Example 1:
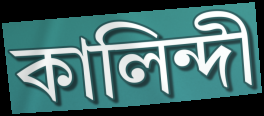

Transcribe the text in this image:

কালিন্দী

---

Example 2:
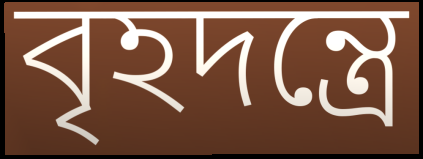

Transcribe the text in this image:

বৃহদন্ত্রে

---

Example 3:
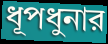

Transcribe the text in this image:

ধূপধুনার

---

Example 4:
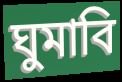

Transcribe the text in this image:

ঘুমাবি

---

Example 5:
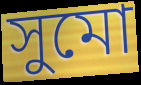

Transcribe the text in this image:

সুমো